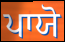
ਪਾਯੋ